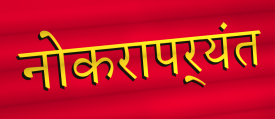
नोकरापर्यंत